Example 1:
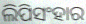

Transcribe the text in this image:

ଲିପିସଂହାର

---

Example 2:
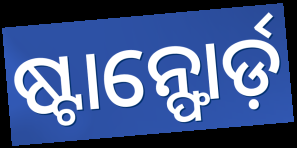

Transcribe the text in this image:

ଷ୍ଟାନ୍ଫୋର୍ଡ଼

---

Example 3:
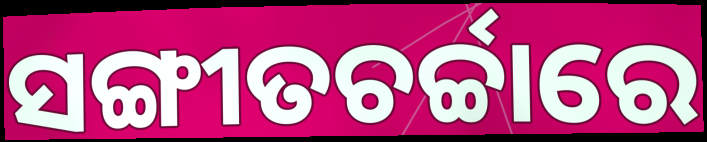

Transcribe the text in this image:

ସଙ୍ଗୀତଚର୍ଚ୍ଚାରେ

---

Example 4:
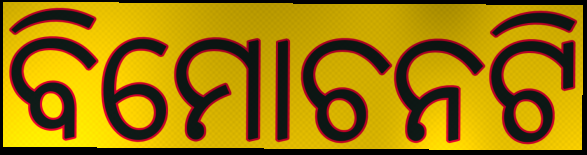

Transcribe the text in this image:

ବିମୋଚନଟି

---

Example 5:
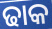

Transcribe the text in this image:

ଢାକ